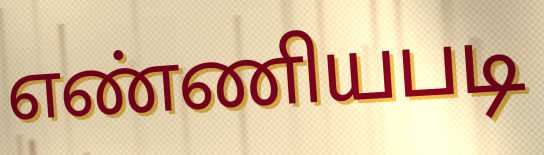
எண்ணியபடி